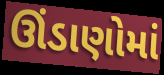
ઊંડાણોમાં